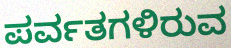
ಪರ್ವತಗಳಿರುವ